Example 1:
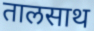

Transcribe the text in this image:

तालसाथ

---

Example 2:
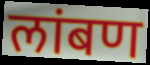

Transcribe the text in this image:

लांबण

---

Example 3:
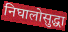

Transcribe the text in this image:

निघालोसुद्धा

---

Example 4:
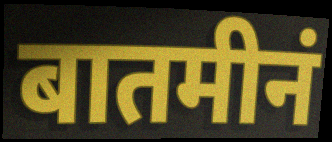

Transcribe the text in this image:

बातमीनं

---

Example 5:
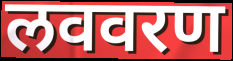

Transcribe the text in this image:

लववरण